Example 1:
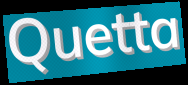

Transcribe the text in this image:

Quetta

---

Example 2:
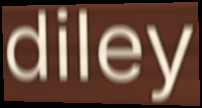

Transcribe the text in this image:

diley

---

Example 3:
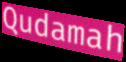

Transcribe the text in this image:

Qudamah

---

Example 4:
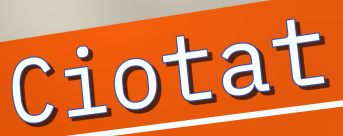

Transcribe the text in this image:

Ciotat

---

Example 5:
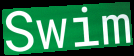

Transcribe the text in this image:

Swim